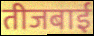
तीजबाई